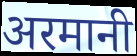
अरमानी